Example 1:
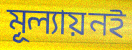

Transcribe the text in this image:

মূল্যায়নই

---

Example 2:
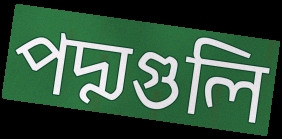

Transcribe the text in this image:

পদ্মগুলি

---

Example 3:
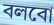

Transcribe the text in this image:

বলবো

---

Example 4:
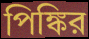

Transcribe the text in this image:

পিঙ্কির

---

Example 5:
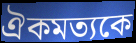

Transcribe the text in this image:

ঐকমত্যকে